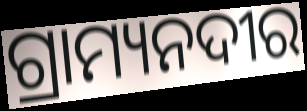
ଗ୍ରାମ୍ୟନଦୀର